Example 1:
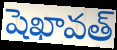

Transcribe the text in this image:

షెఖావత్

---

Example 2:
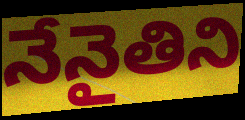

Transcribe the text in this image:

నేనైతిని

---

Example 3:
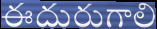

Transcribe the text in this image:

ఈదురుగాలి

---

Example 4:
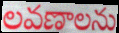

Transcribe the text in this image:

లవణాలను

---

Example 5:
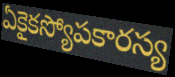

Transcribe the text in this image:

ఏకైకస్యోపకారస్య